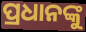
ପ୍ରଧାନଙ୍କୁ